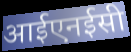
आईएनईसी